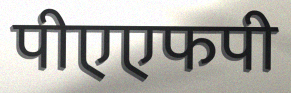
पीएएफपी